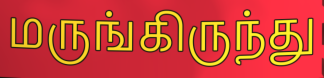
மருங்கிருந்து